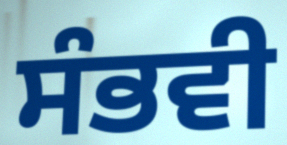
ਸੰਭਵੀ